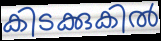
കിടക്കുകിൽ